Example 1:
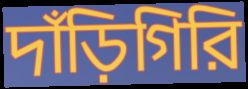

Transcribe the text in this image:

দাঁড়িগিরি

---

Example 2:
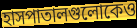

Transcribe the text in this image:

হাসপাতালগুলোকেও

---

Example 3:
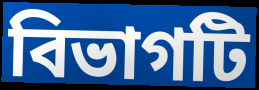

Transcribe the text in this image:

বিভাগটি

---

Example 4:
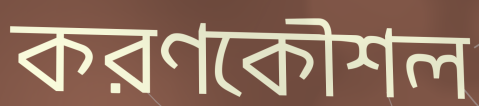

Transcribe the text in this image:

করণকৌশল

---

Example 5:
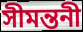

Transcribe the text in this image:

সীমন্তনী